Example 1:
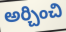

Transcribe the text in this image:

అర్చించి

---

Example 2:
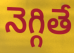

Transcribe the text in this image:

నెగ్గితే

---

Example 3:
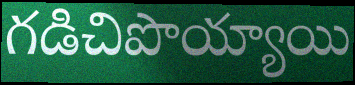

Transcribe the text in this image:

గడిచిపొయ్యాయి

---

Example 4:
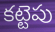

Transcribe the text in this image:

కట్టెపు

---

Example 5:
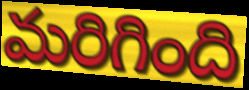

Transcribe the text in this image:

మరిగింది